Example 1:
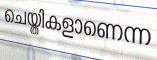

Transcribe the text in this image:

ചെയ്തികളാണെന്ന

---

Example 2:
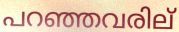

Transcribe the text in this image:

പറഞ്ഞവരില്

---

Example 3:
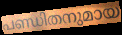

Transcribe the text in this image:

പണ്ഡിതനുമായ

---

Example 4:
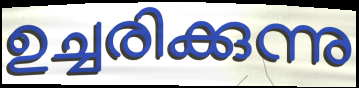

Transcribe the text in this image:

ഉച്ചരിക്കുന്നു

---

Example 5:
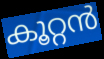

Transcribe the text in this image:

കൂറ്റൻ